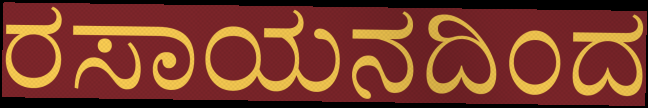
ರಸಾಯನದಿಂದ